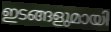
ഇടങ്ങളുമായി